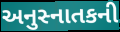
અનુસ્નાતકની